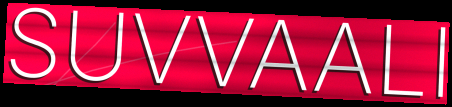
SUVVAALI